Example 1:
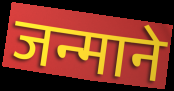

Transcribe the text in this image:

जन्माने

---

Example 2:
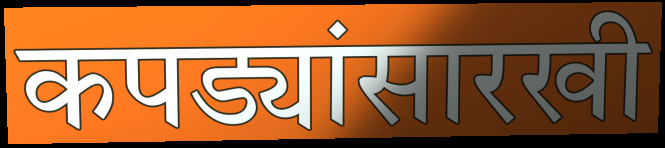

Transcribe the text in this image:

कपड्यांसारखी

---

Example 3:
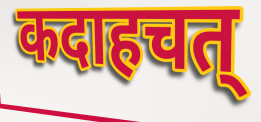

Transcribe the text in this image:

कदाहचत्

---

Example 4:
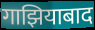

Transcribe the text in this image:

गाझियाबाद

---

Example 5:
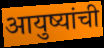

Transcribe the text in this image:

आयुष्यांची